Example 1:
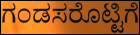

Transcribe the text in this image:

ಗಂಡಸರೊಟ್ಟಿಗೆ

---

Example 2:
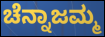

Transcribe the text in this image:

ಚೆನ್ನಾಜಮ್ಮ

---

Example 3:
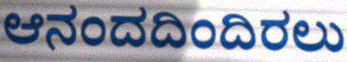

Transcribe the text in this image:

ಆನಂದದಿಂದಿರಲು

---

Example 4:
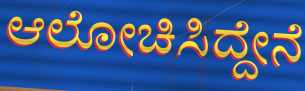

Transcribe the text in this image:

ಆಲೋಚಿಸಿದ್ದೇನೆ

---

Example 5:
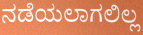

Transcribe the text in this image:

ನಡೆಯಲಾಗಲಿಲ್ಲ